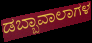
ಡಬ್ಬಾವಾಲಾಗಳ